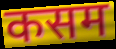
कसम